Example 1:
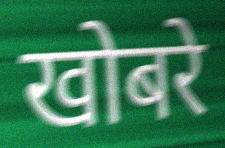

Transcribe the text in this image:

खोबरे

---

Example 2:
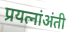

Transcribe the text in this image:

प्रयत्नांअंती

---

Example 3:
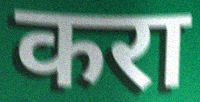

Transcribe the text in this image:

करा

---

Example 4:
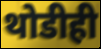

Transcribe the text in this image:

थोडीही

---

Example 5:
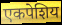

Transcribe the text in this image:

एकपेशिय